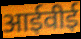
आईवीई